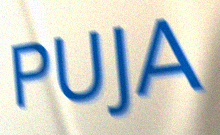
PUJA